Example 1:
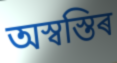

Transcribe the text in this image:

অস্বস্তিৰ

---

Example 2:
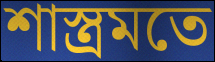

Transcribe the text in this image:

শাস্ত্ৰমতে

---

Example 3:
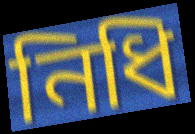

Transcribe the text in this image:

নিধি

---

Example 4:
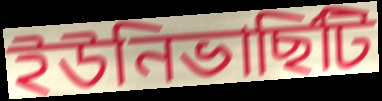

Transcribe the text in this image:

ইউনিভাৰ্ছিটি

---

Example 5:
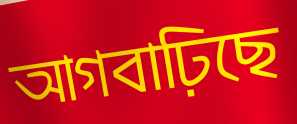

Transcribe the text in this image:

আগবাঢ়িছে